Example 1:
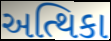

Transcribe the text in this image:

અત્થિકા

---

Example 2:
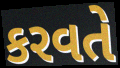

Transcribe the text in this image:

કરવતે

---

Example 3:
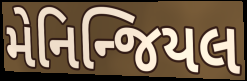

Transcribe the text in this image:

મેનિન્જિયલ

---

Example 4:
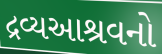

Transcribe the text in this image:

દ્રવ્યઆશ્રવનો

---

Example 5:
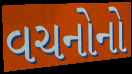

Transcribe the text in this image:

વચનોનો